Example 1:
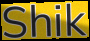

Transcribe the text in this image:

Shik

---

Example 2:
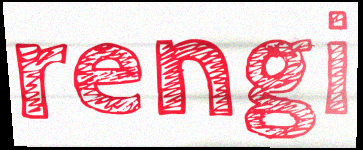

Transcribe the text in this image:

rengi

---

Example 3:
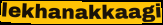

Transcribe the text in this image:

lekhanakkaagi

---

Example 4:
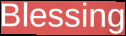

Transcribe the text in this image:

Blessing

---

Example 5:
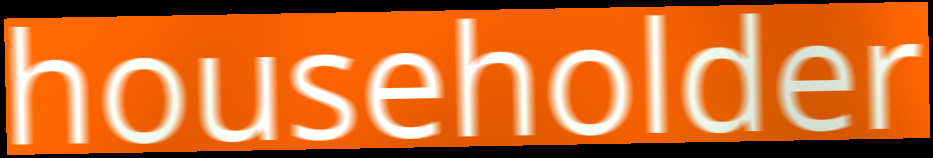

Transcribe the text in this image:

householder